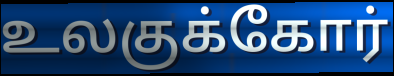
உலகுக்கோர்